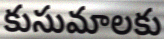
కుసుమాలకు